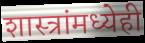
शास्त्रांमध्येही